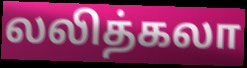
லலித்கலா